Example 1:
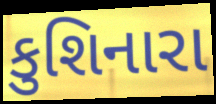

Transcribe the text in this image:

કુશિનારા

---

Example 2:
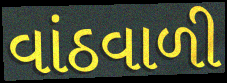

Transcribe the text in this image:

વાંઠવાળી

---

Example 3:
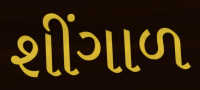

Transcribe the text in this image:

શીંગાળ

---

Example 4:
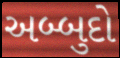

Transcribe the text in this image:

અબ્બુદો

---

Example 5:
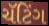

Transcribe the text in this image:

ચૅટિંગ